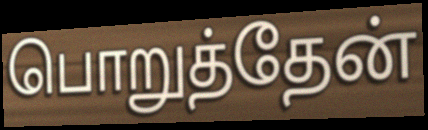
பொறுத்தேன்